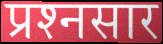
प्रश्‍नसार